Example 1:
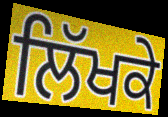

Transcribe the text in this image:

ਲਿੱਖਕੇ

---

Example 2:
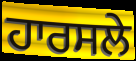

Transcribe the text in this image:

ਹਾਰਸਲੇ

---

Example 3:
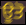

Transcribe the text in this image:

ਊਤੋ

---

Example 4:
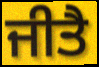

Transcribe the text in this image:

ਜੀਤੈ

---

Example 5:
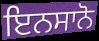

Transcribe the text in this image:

ਇਨਸਾਨੋ